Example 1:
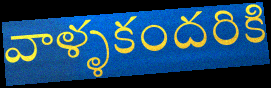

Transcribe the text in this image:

వాళ్ళకందరికి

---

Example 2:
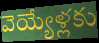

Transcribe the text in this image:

వెయ్యేళ్లకు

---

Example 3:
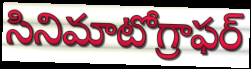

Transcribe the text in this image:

సినిమాటోగ్రాఫర్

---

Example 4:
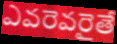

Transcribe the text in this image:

ఎవరెవరైతే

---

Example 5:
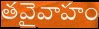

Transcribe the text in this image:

తవైవాహం